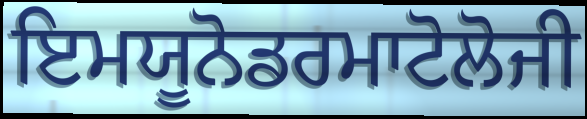
ਇਮਯੂਨੋਡਰਮਾਟੋਲੋਜੀ